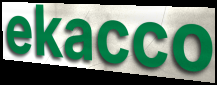
ekacco